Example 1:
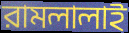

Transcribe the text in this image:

রামলালাই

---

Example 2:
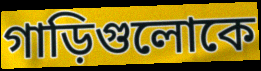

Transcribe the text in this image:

গাড়িগুলোকে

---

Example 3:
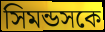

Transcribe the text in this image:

সিমন্ডসকে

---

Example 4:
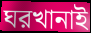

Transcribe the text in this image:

ঘরখানাই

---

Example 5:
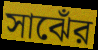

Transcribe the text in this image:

সাঝেঁর